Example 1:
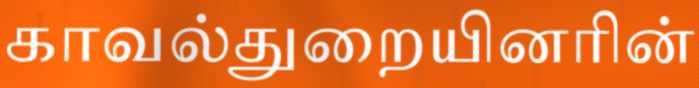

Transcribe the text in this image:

காவல்துறையினரின்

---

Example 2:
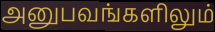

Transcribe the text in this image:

அனுபவங்களிலும்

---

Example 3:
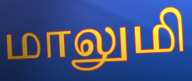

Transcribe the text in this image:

மாலுமி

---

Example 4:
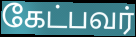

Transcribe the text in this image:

கேட்பவர்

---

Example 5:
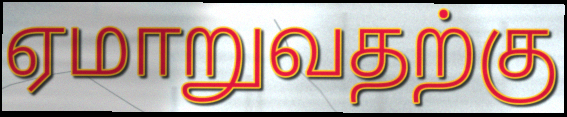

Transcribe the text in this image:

ஏமாறுவதற்கு